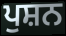
ਪੁਸ਼ਨ